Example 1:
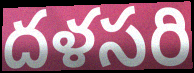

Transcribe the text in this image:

దళసరి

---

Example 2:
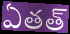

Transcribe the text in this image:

ఏతత్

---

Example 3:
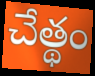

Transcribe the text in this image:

చేత్థం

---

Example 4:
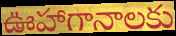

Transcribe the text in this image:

ఊహాగానాలకు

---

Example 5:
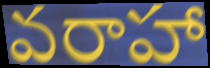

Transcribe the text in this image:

వరాహా